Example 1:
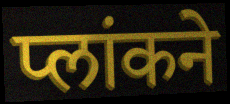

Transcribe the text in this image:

प्लांकने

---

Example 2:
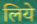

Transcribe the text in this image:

लिये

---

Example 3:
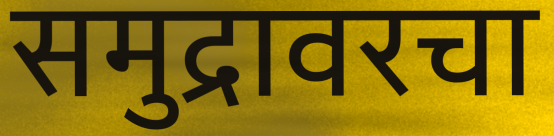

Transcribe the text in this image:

समुद्रावरचा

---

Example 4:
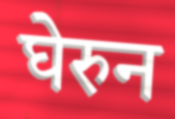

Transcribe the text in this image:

घेरुन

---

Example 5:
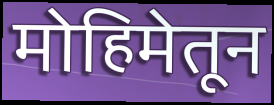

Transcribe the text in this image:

मोहिमेतून